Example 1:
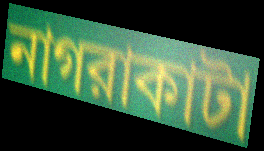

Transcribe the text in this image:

নাগরাকাটা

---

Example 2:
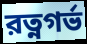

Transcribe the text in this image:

রত্নগর্ভ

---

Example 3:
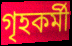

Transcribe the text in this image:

গৃহকর্মী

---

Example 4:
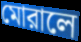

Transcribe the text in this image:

মোরালে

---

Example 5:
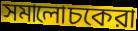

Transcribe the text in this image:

সমালোচকেরা